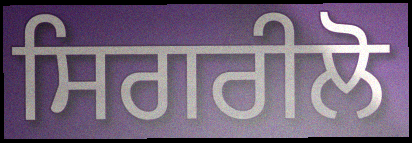
ਸਿਗਰੀਲੋ